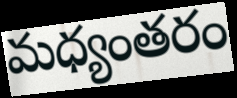
మధ్యంతరం